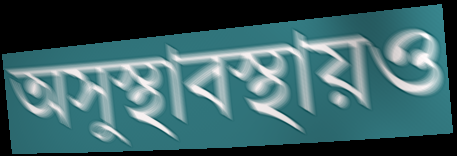
অসুস্থাবস্থায়ও